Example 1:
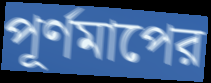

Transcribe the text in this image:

পূর্ণমাপের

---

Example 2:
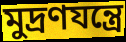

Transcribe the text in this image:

মুদ্রণযন্ত্রে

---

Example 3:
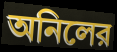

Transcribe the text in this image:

অনিলের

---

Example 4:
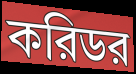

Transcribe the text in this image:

করিডর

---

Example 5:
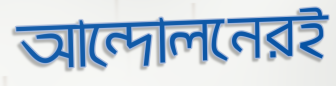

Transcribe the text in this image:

আন্দোলনেরই